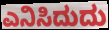
ಎನಿಸಿದುದು